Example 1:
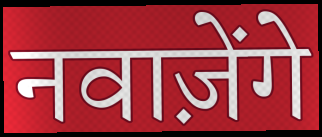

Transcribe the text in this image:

नवाज़ेंगे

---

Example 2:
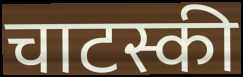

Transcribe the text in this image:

चाटस्की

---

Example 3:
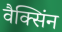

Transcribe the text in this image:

वैक्सिंन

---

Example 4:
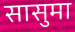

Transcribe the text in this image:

सासुमा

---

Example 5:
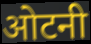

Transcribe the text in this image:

ओटनी